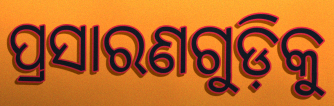
ପ୍ରସାରଣଗୁଡ଼ିକୁ